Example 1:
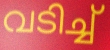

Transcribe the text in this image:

വടിച്ച്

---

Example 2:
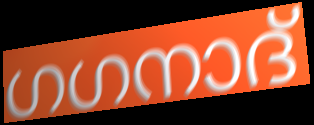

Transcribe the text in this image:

ഗഗനാദ്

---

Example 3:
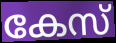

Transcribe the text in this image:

കേസ്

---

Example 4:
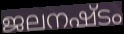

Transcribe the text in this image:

ജലനഷ്ടം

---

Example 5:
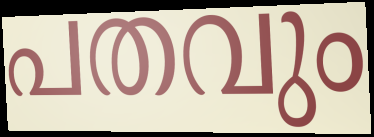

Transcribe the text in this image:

പതവും